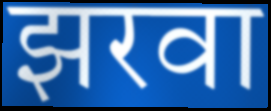
झरवा